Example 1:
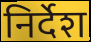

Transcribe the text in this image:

निर्देश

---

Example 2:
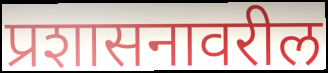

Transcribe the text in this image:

प्रशासनावरील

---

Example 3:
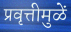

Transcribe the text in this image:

प्रवृत्तीमुळें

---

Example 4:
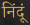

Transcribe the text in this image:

निंदूं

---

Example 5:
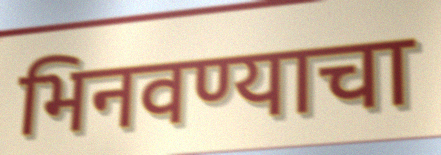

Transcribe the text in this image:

भिनवण्याचा